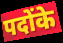
पदोंके